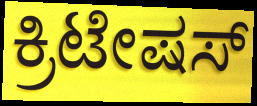
ಕ್ರಿಟೇಷಸ್